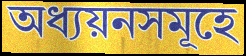
অধ্যয়নসমূহে